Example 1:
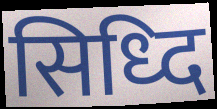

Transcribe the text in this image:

सिध्दि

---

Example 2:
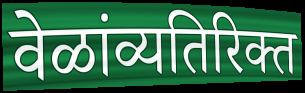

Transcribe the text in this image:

वेळांव्यतिरिक्त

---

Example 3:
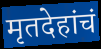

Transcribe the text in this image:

मृतदेहांचं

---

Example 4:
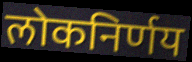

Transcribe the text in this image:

लोकनिर्णय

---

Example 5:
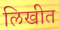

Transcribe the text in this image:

लिखीत